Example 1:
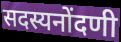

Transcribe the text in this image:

सदस्यनोंदणी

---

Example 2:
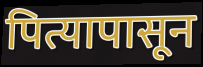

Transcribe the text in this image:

पित्यापासून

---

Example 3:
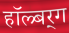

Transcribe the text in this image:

हॉल्बर्ग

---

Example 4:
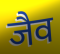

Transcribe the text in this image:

जैव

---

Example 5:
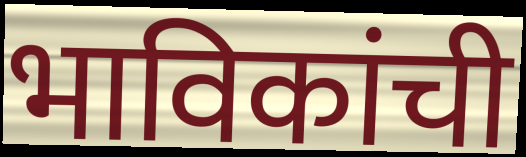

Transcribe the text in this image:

भाविकांची